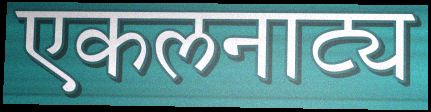
एकलनाट्य